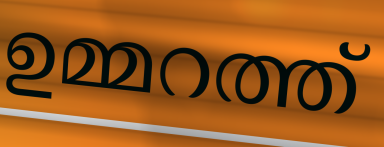
ഉമ്മറത്ത്